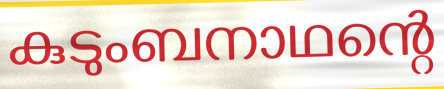
കുടുംബനാഥന്റെ